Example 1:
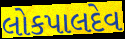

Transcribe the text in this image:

લોકપાલદેવ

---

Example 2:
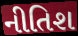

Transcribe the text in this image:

નીતિશ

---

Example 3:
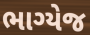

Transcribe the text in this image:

ભાગ્યેજ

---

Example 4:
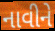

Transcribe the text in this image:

નાવીને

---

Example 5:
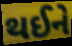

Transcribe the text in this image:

થઈને